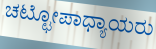
ಚಟ್ಟೋಪಾಧ್ಯಾಯರು